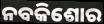
ନବକିଶୋର